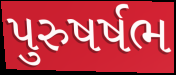
પુરુષર્ષભ